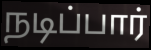
நடிப்பார்